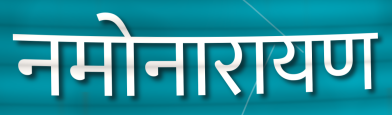
नमोनारायण